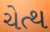
ચેત્થ